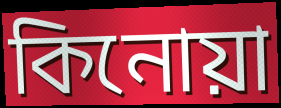
কিনোয়া